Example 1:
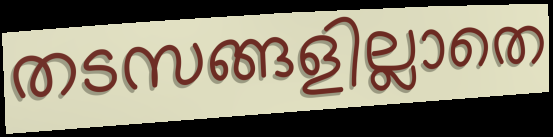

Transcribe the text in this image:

തടസങ്ങളില്ലാതെ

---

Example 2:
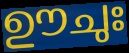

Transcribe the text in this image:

ഊചുഃ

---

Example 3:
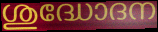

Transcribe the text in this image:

ശുദ്ധോദന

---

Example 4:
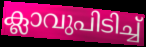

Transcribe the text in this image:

ക്ലാവുപിടിച്ച്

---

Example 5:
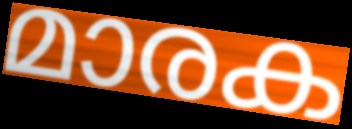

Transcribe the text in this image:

മാരക